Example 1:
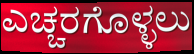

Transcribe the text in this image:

ಎಚ್ಚರಗೊಳ್ಳಲು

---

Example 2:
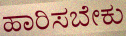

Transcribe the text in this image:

ಹಾರಿಸಬೇಕು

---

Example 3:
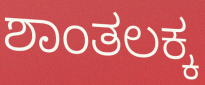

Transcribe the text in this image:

ಶಾಂತಲಕ್ಕ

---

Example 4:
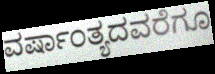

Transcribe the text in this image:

ವರ್ಷಾಂತ್ಯದವರೆಗೂ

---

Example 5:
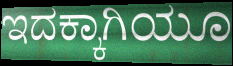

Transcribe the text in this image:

ಇದಕ್ಕಾಗಿಯೂ